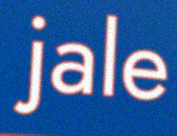
jale